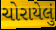
ચોરાયેલું